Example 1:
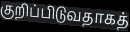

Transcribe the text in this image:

குறிப்பிடுவதாகத்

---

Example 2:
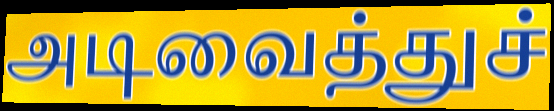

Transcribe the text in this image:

அடிவைத்துச்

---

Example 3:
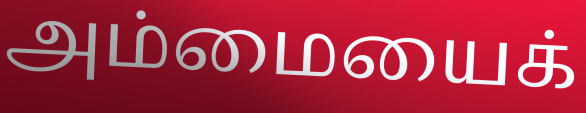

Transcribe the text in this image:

அம்மையைக்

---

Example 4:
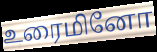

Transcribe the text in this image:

உரைமினோ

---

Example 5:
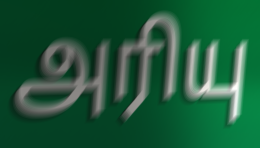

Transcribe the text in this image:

அரியு